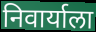
निवार्याला